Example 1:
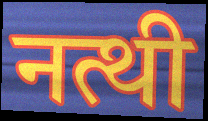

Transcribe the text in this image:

नत्थी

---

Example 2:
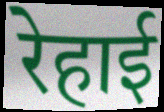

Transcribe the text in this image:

रेहाई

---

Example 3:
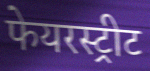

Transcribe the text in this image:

फेयरस्ट्रीट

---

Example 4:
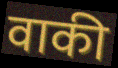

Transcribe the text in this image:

वाकी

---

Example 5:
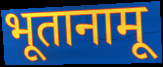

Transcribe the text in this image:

भूतानामू